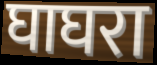
घाघरा